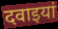
दवाइयां